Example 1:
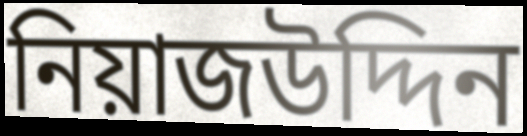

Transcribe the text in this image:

নিয়াজউদ্দিন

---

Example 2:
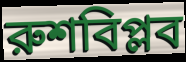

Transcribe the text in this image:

রুশবিপ্লব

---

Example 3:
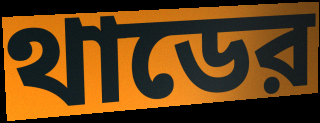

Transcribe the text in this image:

থাডের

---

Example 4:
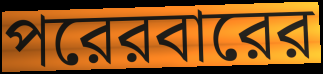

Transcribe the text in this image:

পরেরবারের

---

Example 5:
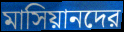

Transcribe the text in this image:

মাসিয়ানদের